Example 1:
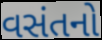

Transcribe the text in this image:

વસંતનો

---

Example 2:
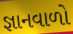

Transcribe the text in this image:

જ્ઞાનવાળો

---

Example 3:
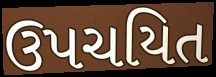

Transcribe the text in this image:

ઉપચયિત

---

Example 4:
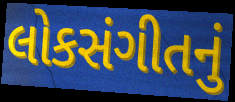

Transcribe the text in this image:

લોકસંગીતનું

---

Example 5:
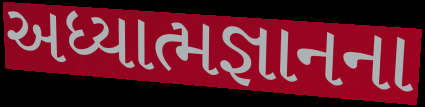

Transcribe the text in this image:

અધ્યાત્મજ્ઞાનના